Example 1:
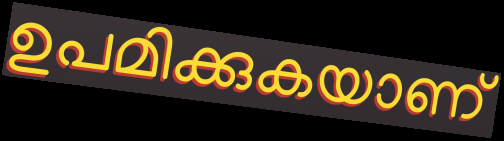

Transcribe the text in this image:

ഉപമിക്കുകയാണ്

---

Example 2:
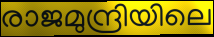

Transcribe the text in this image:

രാജമുന്ദ്രിയിലെ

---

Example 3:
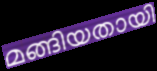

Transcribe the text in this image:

മങ്ങിയതായി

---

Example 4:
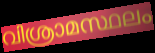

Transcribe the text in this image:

വിശ്രാമസ്ഥലം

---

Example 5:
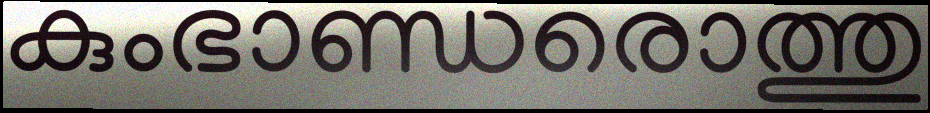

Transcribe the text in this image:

കുംഭാണ്ഡരൊത്തു